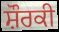
ਸ਼ੌਰਕੀ